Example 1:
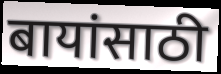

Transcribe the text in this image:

बायांसाठी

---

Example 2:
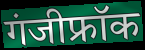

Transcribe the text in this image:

गंजीफ्रॉक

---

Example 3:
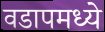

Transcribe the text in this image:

वडापमध्ये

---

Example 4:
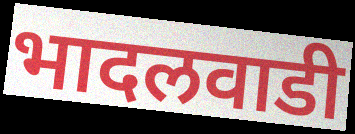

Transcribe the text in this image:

भादलवाडी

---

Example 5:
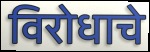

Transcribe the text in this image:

विरोधाचे